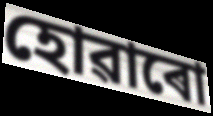
হোৱাৰো